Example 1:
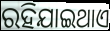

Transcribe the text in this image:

ରହିଯାଇଥାଏ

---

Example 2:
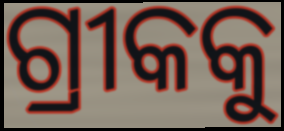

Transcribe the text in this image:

ଗ୍ରୀକକୁ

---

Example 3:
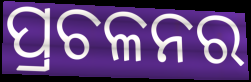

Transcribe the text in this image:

ପ୍ରଚଳନର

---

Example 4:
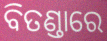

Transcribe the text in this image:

ବିତଣ୍ଡାରେ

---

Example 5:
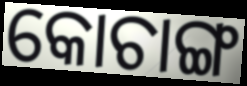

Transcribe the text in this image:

କୋଚାଙ୍ଗ